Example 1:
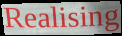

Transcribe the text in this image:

Realising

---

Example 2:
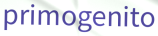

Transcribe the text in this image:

primogenito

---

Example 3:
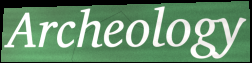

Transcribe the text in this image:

Archeology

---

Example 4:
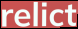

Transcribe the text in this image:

relict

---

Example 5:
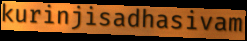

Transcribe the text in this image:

kurinjisadhasivam